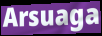
Arsuaga